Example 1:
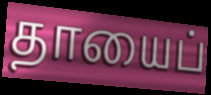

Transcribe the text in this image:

தாயைப்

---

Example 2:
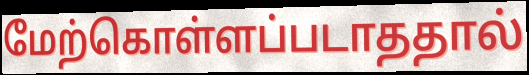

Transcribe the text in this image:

மேற்கொள்ளப்படாததால்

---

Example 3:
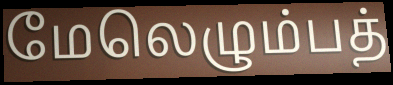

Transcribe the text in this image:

மேலெழும்பத்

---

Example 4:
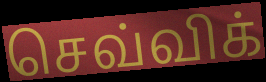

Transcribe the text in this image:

செவ்விக்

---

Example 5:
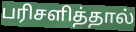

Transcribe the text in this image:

பரிசளித்தால்